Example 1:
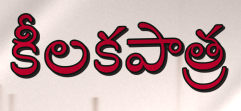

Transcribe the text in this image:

కీలకపాత్ర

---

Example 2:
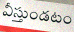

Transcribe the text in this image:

వీస్తుండటం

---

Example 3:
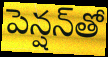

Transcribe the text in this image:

పెన్షన్‌తో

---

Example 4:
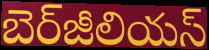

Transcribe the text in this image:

బెర్‌జీలియస్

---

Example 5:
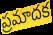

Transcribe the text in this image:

ప్రమాదక